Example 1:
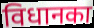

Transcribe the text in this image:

विधानका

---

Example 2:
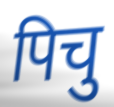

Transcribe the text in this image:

पिचु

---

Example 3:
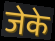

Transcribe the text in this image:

जेके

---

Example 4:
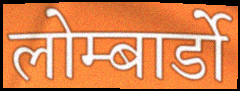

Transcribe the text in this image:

लोम्बार्डो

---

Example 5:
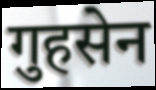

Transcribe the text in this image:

गुहसेन